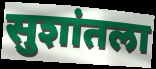
सुशांतला